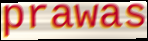
prawas